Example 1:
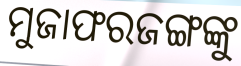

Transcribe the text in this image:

ମୁଜାଫରଜଙ୍ଗଙ୍କୁ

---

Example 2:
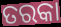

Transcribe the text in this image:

ତରକା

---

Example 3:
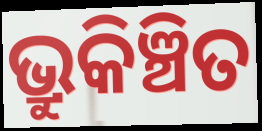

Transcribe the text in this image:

ଭ୍ରୁକିଞ୍ଚିତ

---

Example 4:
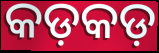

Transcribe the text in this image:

କଡ଼କଡ଼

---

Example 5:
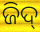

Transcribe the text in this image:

ଜିଦ୍